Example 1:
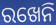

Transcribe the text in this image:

ରଖେନି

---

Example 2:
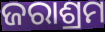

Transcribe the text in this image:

ଜରାଶ୍ରମ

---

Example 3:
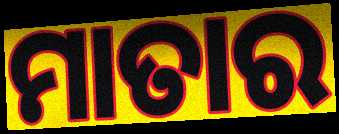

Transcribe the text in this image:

ମାତାର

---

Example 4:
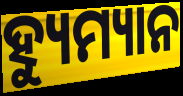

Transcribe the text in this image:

ହ୍ୟୁମ୍ୟାନ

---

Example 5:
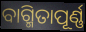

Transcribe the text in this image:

ବାଗ୍ମିତାପୂର୍ଣ୍ଣ